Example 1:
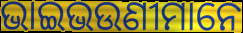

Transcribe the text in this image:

ଭାଇଭଉଣୀମାନେ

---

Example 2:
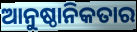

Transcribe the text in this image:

ଆନୁଷ୍ଠାନିକତାର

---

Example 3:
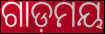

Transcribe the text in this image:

ଗାଡ଼ମୟ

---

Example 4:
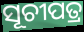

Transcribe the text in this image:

ସୂଚୀପତ୍ର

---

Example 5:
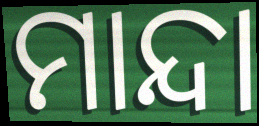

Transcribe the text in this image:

ମାନ୍ଦା